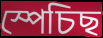
স্পেচিছ